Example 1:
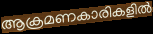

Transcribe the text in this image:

ആക്രമണകാരികളിൽ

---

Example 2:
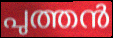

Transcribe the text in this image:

പുത്തൻ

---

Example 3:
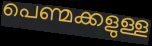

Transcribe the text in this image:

പെണ്മക്കളുള്ള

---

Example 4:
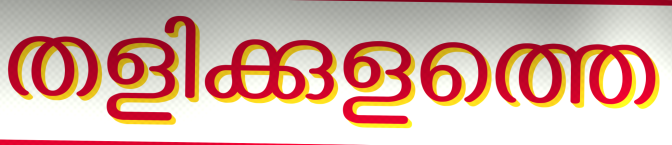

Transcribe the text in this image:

തളിക്കുളത്തെ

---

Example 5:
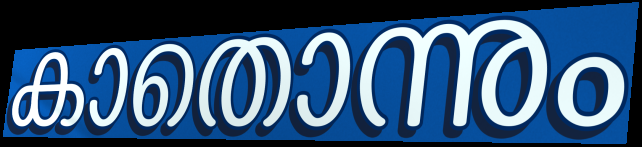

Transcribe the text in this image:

കാതൊന്നും